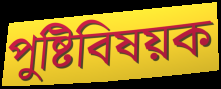
পুষ্টিবিষয়ক